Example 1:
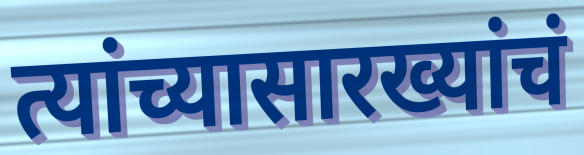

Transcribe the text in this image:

त्यांच्यासारख्यांचं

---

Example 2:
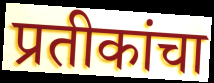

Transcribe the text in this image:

प्रतीकांचा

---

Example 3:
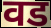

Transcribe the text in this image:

वड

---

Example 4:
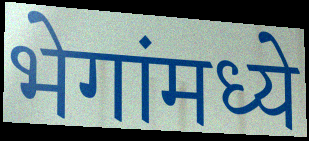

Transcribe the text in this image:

भेगांमध्ये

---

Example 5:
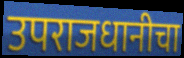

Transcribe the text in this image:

उपराजधानीचा